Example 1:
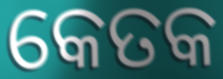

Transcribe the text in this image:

କେତକ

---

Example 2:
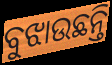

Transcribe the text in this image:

ବୁଝାଉଛନ୍ତି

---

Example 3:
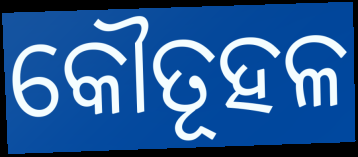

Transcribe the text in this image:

କୌତୂହଳ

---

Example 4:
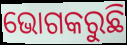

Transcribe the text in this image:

ଭୋଗକରୁଛି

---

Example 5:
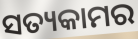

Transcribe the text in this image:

ସତ୍ୟକାମର